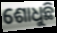
ଶୋଧୁଛି